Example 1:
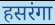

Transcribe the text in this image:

हसरंगा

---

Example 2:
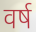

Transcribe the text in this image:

वर्ष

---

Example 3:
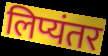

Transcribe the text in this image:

लिप्यंतर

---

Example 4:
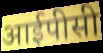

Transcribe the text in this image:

आईपीसी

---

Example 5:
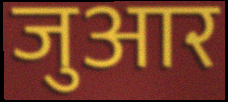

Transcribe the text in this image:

जुआर